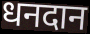
धनदान